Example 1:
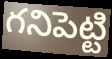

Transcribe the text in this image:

గనిపెట్టి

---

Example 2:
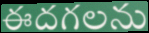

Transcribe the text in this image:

ఈదగలను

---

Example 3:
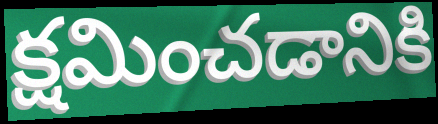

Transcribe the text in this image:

క్షమించడానికి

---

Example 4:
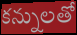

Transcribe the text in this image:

కన్నులతో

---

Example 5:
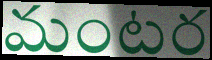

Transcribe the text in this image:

మంటర